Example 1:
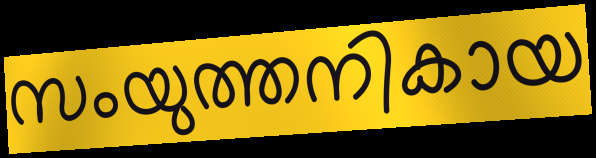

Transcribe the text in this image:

സംയുത്തനികായ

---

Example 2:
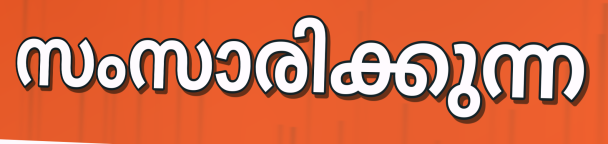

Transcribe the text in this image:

സംസാരിക്കുന്ന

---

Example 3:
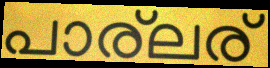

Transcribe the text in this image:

പാര്ലര്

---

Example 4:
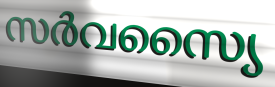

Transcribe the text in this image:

സർവസ്യൈ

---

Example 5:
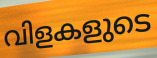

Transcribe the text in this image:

വിളകളുടെ